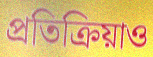
প্রতিক্রিয়াও